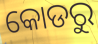
କୋଡରୁ